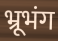
भ्रूभंग